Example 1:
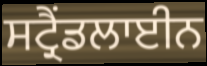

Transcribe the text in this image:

ਸਟ੍ਰੈਂਡਲਾਈਨ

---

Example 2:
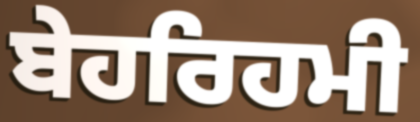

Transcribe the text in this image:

ਬੇਹਰਿਹਮੀ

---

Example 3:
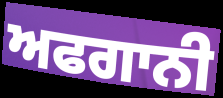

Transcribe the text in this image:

ਅਫਗਾਨੀ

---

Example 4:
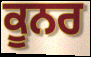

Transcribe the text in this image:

ਕੂਨਰ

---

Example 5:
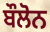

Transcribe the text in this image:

ਬੌਲੋਨ